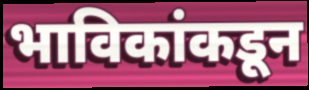
भाविकांकडून